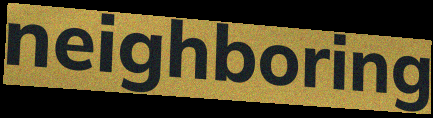
neighboring